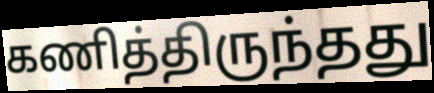
கணித்திருந்தது